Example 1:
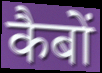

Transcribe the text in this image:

कैबों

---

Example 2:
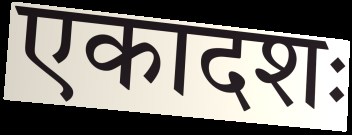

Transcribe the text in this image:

एकादशः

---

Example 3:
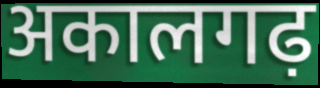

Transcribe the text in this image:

अकालगढ़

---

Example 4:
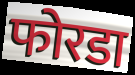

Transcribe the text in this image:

फोरडा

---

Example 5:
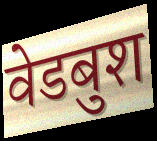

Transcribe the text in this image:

वेडबुश